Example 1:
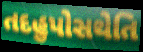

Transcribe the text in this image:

તદહુપોસથેતિ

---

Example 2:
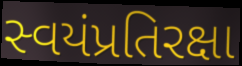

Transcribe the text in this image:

સ્વયંપ્રતિરક્ષા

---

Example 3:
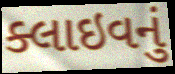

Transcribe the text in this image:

ક્લાઇવનું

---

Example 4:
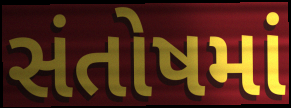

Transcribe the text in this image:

સંતોષમાં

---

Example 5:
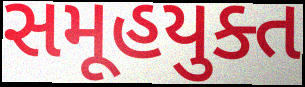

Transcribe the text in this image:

સમૂહયુક્ત